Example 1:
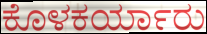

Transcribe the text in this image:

ಕೊಳಕರ್ಯಾರು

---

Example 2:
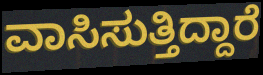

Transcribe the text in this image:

ವಾಸಿಸುತ್ತಿದ್ದಾರೆ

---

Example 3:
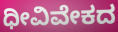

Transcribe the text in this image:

ಧೀವಿವೇಕದ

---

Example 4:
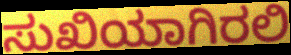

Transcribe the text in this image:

ಸುಖಿಯಾಗಿರಲಿ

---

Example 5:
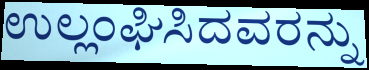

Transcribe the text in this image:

ಉಲ್ಲಂಘಿಸಿದವರನ್ನು